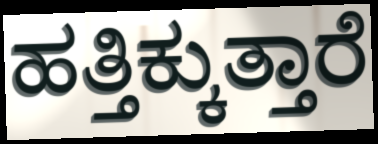
ಹತ್ತಿಕ್ಕುತ್ತಾರೆ